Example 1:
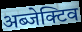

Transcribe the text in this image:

अब्जेक्टिव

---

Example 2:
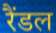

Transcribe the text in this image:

रैंडल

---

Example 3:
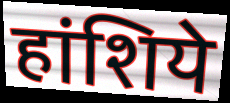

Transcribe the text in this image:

हांशिये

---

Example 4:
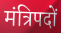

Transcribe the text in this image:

मंत्रिपदों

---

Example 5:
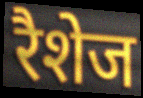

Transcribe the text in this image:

रैशेज